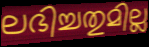
ലഭിച്ചതുമില്ല